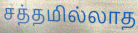
சத்தமில்லாத